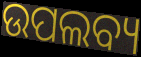
ଉପଲବ୍ୟ